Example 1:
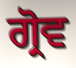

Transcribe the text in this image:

ਗ੍ਰੋਵ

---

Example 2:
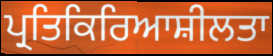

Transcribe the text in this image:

ਪ੍ਰਤਿਕਿਰਿਆਸ਼ੀਲਤਾ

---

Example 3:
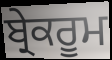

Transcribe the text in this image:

ਬ੍ਰੇਕਰੂਮ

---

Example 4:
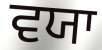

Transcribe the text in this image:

ਵਯਾ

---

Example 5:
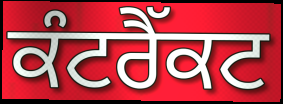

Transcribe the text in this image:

ਕੰਟਰੈੱਕਟ